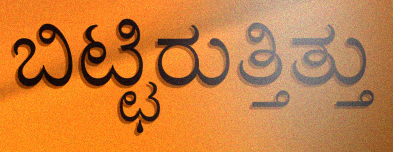
ಬಿಟ್ಟಿರುತ್ತಿತ್ತು